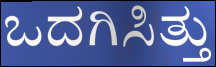
ಒದಗಿಸಿತ್ತು